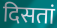
दिसतां